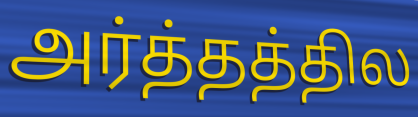
அர்த்தத்தில